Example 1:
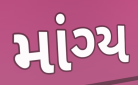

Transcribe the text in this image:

માંગ્ય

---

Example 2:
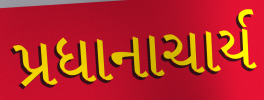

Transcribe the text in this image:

પ્રધાનાચાર્ય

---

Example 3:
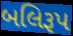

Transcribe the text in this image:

બલિરૂપ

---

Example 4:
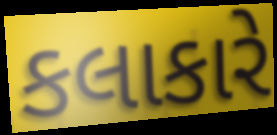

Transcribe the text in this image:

કલાકારે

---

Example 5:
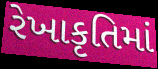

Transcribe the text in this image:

રેખાકૃતિમાં